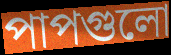
পাপগুলো